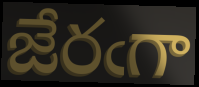
జేరఁగా